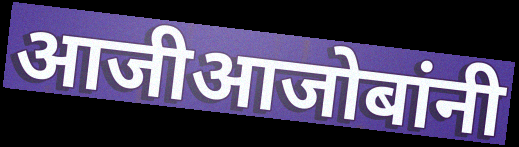
आजीआजोबांनी